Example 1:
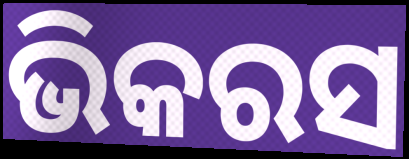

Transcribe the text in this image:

ଭିକରସ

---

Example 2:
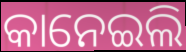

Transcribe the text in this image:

କାନେଇଲି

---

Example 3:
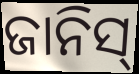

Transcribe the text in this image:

ଜାନିସ୍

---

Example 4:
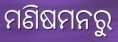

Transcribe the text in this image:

ମଣିଷମନରୁ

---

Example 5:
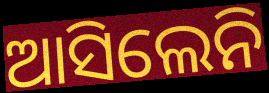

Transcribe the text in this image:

ଆସିଲେନି